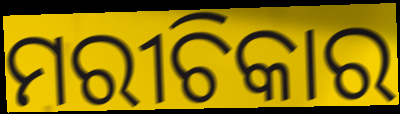
ମରୀଚିକାର